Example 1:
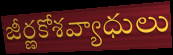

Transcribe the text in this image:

జీర్ణకోశవ్యాధులు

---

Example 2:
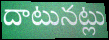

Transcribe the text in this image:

దాటునట్లు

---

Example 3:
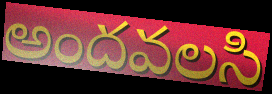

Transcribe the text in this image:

అందవలసి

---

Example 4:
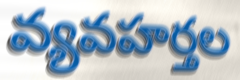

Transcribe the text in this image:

వ్యవహర్తల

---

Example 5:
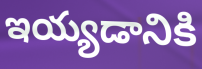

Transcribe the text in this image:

ఇయ్యడానికి